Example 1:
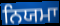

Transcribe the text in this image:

ਨਿਯਮਾ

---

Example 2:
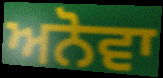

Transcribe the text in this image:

ਅਨੋਵਾ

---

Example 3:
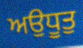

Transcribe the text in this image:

ਅਉਧੂਤੁ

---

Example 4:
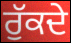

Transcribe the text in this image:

ਰੁੱਕਦੇ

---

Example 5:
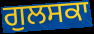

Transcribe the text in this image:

ਗੁਲਸਕਾ